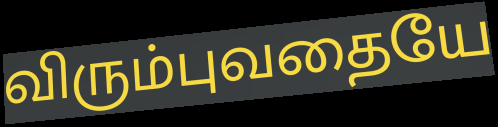
விரும்புவதையே